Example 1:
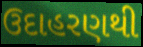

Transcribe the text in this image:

ઉદાહરણથી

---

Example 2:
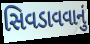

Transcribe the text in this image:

સિવડાવવાનું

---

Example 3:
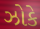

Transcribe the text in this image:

ઝોકે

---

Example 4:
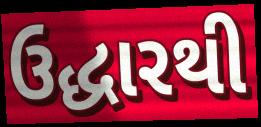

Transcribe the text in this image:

ઉદ્ધારથી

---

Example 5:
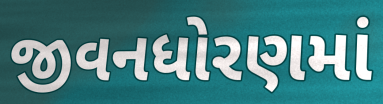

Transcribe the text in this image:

જીવનધોરણમાં